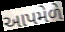
આપમેળે